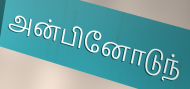
அன்பினோடுந்